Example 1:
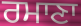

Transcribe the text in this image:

ਰਮਾਣਾ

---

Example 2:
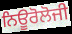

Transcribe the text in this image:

ਨਿਊਰੋਲੋਜੀ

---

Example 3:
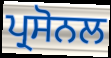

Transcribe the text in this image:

ਪ੍ਰਸੋਨਲ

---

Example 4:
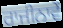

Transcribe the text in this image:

ਰਾਜੀਨਾਵੇਂ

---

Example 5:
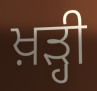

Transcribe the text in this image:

ਖ਼ੜ੍ਹੀ